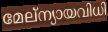
മേല്ന്യായവിധി